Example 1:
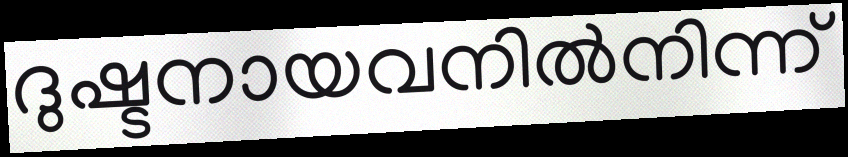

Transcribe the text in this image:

ദുഷ്ടനായവനിൽനിന്ന്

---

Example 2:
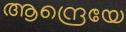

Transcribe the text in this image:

ആന്ദ്രെയേ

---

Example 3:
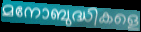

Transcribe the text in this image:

മനോബുദ്ധികളെ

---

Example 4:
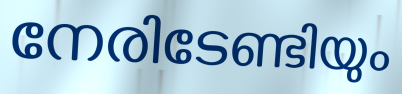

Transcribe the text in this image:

നേരിടേണ്ടിയും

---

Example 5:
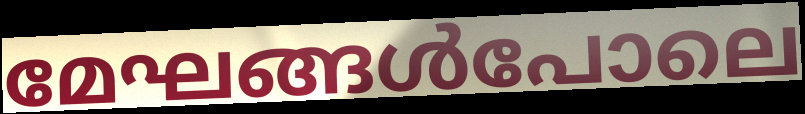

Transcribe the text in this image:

മേഘങ്ങൾപോലെ